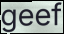
geef